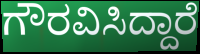
ಗೌರವಿಸಿದ್ದಾರೆ